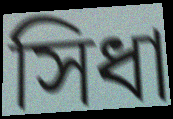
সিধা